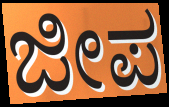
ಜೀಪ